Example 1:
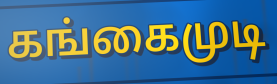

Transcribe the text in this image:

கங்கைமுடி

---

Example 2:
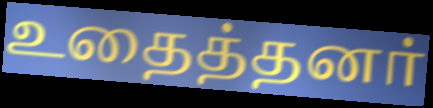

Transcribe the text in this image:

உதைத்தனர்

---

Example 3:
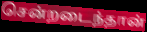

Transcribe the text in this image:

சென்றடைந்தான்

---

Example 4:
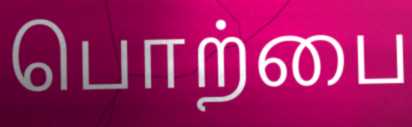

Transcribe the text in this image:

பொற்பை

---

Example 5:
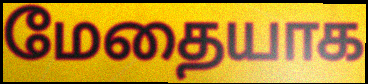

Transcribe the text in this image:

மேதையாக